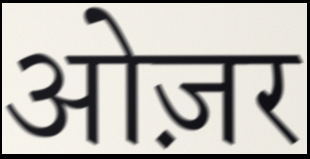
ओज़र